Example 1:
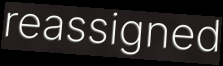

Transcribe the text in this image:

reassigned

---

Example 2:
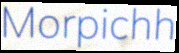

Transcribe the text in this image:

Morpichh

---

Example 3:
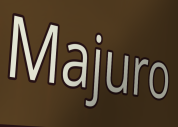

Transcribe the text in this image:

Majuro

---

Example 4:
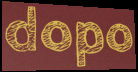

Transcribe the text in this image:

dopo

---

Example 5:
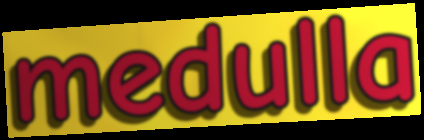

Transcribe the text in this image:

medulla